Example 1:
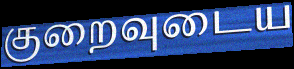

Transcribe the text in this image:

குறைவுடைய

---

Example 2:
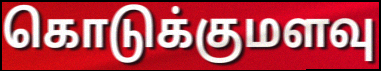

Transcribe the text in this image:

கொடுக்குமளவு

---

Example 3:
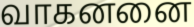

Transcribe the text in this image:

வாகனனை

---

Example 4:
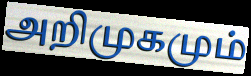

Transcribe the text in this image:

அறிமுகமும்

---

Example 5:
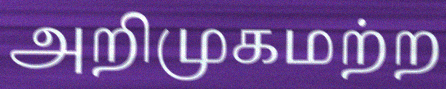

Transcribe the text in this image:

அறிமுகமற்ற